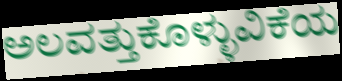
ಅಲವತ್ತುಕೊಳ್ಳುವಿಕೆಯ